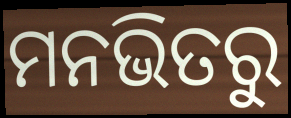
ମନଭିତରୁ